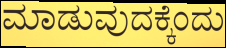
ಮಾಡುವುದಕ್ಕೆಂದು